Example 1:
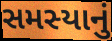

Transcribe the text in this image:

સમસ્યાનું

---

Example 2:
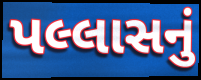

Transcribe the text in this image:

પલ્લાસનું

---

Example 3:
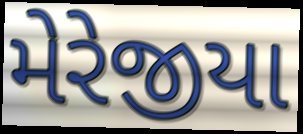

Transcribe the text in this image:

મેરેજીયા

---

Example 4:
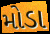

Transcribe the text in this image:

મોડા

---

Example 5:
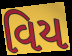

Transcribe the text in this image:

વિય